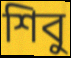
শিবু